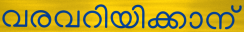
വരവറിയിക്കാന്